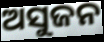
ଅସୁଜନ